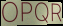
OPQR